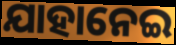
ଯାହାନେଇ